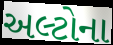
અલ્ટોના